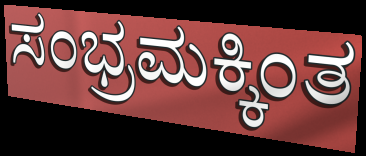
ಸಂಭ್ರಮಕ್ಕಿಂತ